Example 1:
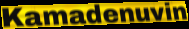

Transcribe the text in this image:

Kamadenuvin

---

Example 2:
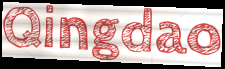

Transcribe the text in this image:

Qingdao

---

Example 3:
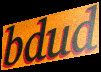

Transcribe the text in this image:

bdud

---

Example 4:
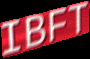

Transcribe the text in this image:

IBFT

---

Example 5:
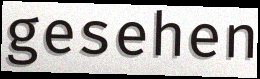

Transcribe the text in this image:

gesehen